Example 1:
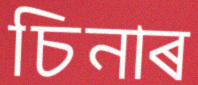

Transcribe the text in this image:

চিনাৰ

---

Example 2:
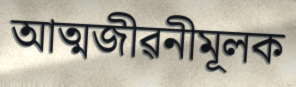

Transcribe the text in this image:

আত্মজীৱনীমূলক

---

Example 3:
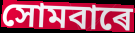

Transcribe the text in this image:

সোমবাৰে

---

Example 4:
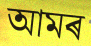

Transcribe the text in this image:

আমৰ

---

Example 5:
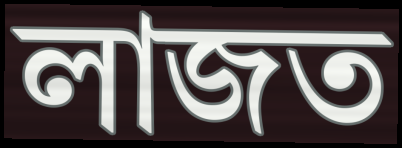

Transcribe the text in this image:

লাজত